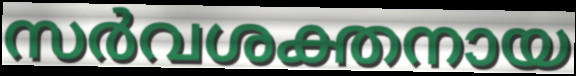
സർവശക്തനായ